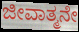
ಜೀವಾತ್ಮನೇ